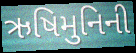
ઋષિમુનિની